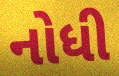
નોધી